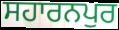
ਸਹਾਰਨਪੁਰ